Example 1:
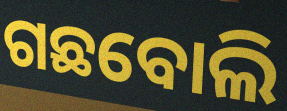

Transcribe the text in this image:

ଗଛବୋଲି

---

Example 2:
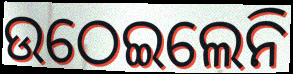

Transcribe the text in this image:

ଉଠେଇଲେନି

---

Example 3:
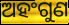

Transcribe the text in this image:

ଅହଂଗୁଣ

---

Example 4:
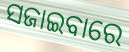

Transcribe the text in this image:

ସଜାଇବାରେ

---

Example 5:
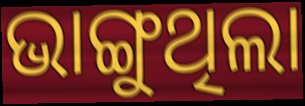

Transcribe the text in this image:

ଭାଙ୍ଗୁଥିଲା